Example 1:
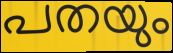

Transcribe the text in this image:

പതയും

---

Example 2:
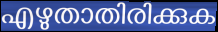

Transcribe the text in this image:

എഴുതാതിരിക്കുക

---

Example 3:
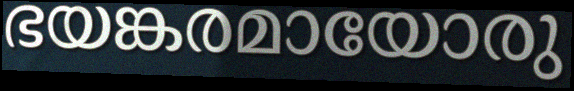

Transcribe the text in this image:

ഭയങ്കരമായോരു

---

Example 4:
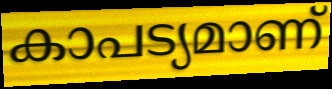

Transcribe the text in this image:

കാപട്യമാണ്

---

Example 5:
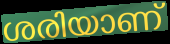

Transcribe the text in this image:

ശരിയാണ്